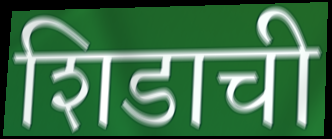
शिडाची